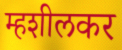
म्हशीलकर